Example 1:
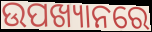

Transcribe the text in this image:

ଉପଖ୍ୟାନରେ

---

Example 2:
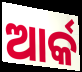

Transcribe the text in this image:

ଆର୍କ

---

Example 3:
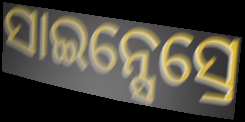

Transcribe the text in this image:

ସାଇନ୍ସେସ୍ରେ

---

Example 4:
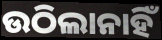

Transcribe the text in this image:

ଉଠିଲାନାହିଁ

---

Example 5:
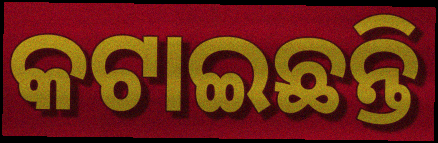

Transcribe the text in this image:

କଟାଇଛନ୍ତି